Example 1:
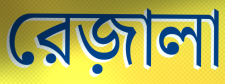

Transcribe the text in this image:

রেজ়ালা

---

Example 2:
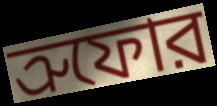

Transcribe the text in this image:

ত্রুফোর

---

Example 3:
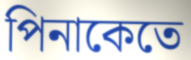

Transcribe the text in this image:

পিনাকেতে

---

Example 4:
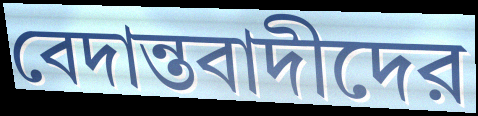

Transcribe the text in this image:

বেদান্তবাদীদের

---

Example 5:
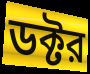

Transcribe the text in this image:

ডক্টর